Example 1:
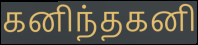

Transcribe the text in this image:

கனிந்தகனி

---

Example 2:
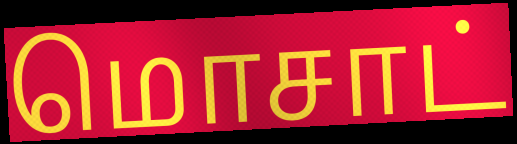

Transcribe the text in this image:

மொசாட்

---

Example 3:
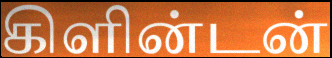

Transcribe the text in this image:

கிளின்டன்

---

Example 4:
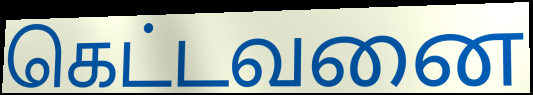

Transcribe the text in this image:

கெட்டவனை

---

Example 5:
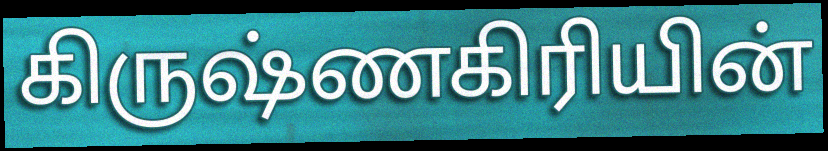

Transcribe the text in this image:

கிருஷ்ணகிரியின்